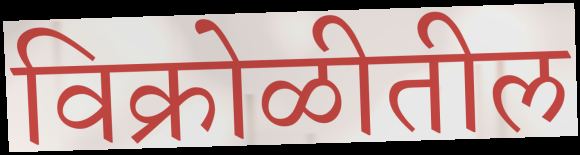
विक्रोळीतील